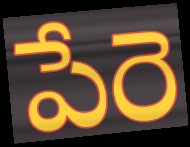
పేరె